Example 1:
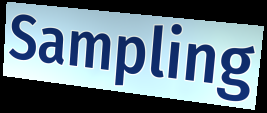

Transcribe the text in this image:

Sampling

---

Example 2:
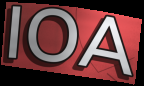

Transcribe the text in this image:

IOA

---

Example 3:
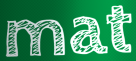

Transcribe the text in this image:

mat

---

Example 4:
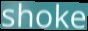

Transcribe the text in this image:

shoke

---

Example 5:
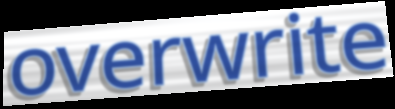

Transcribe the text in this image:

overwrite